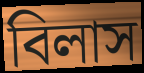
বিলাস